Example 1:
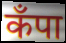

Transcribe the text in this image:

कँपा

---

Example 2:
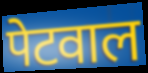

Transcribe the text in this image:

पेटवाल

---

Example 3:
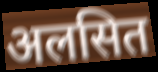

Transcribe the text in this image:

अलसित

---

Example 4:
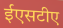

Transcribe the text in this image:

ईएसटीए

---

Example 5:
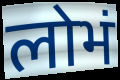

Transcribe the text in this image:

लोभं